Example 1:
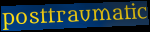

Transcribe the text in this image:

posttraumatic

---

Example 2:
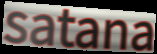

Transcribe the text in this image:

satana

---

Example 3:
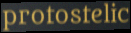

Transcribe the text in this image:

protostelic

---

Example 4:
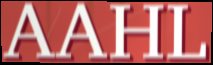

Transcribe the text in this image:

AAHL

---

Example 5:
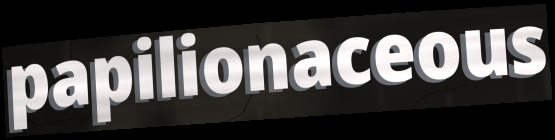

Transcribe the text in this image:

papilionaceous